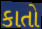
કાતો